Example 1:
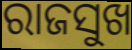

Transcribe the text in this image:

ରାଜସୁଖ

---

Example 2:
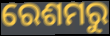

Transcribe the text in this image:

ରେଶମରୁ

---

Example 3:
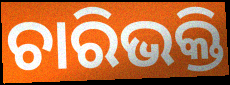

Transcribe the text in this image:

ଚାରିଭକ୍ତି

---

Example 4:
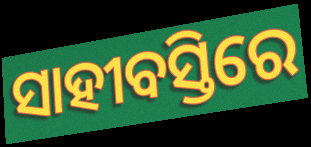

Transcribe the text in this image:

ସାହୀବସ୍ତିରେ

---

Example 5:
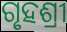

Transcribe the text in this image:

ଗୃହଶ୍ରୀ